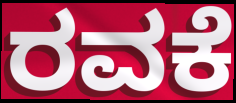
ರವಕೆ